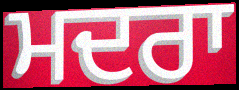
ਮਦਰਾ